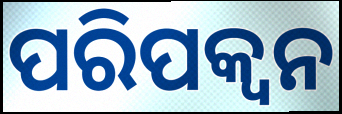
ପରିପକ୍ବନ